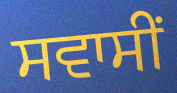
ਸਵਾਸੀਂ